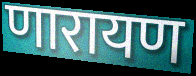
णारायण